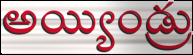
అయ్యిండ్రు